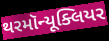
થરમૉન્યૂક્લિયર